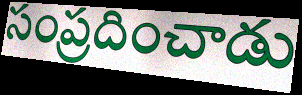
సంప్రదించాడు